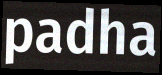
padha